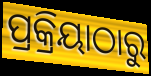
ପ୍ରକ୍ରିୟାଠାରୁ